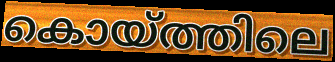
കൊയ്ത്തിലെ